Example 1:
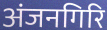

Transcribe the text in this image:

अंजनगिरि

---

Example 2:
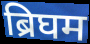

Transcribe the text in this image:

ब्रिघम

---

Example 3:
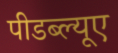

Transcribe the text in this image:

पीडब्ल्यूए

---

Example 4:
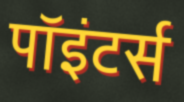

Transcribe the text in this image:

पॉइंटर्स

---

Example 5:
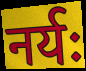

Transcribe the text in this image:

नर्यः